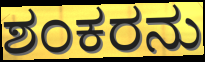
ಶಂಕರನು